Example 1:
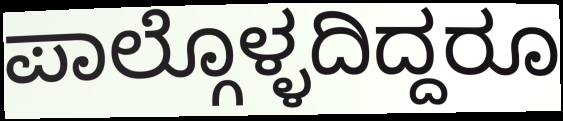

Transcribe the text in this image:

ಪಾಲ್ಗೊಳ್ಳದಿದ್ದರೂ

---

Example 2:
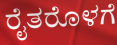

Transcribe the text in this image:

ರೈತರೊಳಗೆ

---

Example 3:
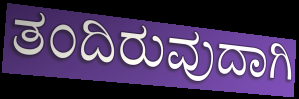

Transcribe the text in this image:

ತಂದಿರುವುದಾಗಿ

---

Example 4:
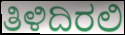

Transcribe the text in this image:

ತಿಳಿದಿರಲಿ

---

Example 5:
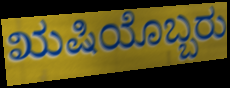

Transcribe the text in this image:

ಋಷಿಯೊಬ್ಬರು